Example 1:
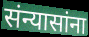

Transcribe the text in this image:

संन्यासांना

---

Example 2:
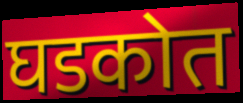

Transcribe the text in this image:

घडकोत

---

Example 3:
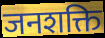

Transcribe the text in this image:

जनशक्ति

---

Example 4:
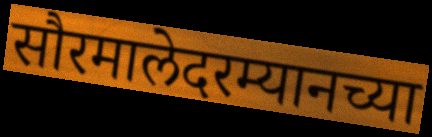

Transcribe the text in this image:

सौरमालेदरम्यानच्या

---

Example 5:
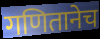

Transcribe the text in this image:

गणितानेच